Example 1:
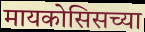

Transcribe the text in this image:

मायकोसिसच्या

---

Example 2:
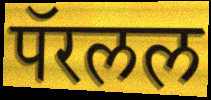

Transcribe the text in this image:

पॅरलल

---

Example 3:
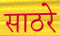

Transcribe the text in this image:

साठरे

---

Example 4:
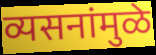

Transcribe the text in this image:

व्यसनांमुळे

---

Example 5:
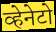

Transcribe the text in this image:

व्हेनेटो